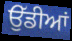
ਉੱਡੀਆਂ